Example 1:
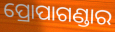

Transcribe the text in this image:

ପ୍ରୋପାଗଣ୍ଡାର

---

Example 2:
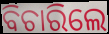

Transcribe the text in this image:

ବିଚାରିଲେ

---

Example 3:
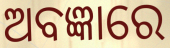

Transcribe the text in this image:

ଅବଜ୍ଞାରେ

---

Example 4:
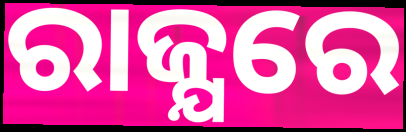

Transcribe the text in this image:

ରାଜ୍ଯରେ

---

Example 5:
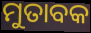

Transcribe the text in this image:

ମୁତାବକ